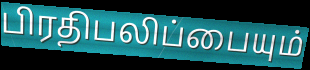
பிரதிபலிப்பையும்